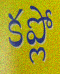
కప్లో